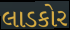
લાડકોર